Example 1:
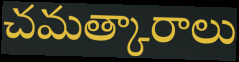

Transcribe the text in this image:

చమత్కారాలు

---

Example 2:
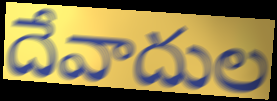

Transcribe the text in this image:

దేవాదుల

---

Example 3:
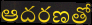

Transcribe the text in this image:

ఆదరణతో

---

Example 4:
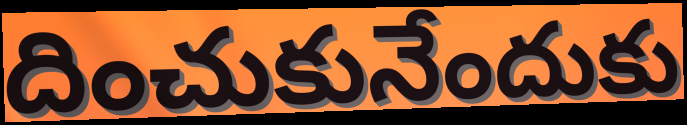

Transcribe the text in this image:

దించుకునేందుకు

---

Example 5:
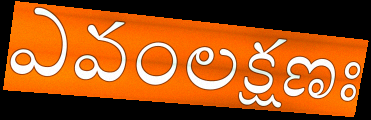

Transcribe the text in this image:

ఎవంలక్షణః